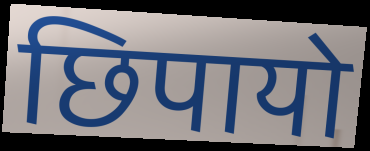
छिपायो